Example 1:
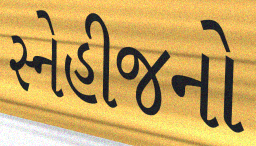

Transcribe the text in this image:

સ્નેહીજનો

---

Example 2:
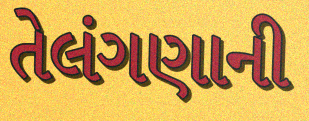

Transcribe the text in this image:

તેલંગણાની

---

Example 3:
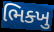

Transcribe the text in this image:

ભિક્ખુ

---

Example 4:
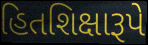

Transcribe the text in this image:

હિતશિક્ષારૂપે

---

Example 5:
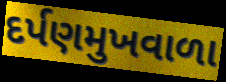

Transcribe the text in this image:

દર્પણમુખવાળા